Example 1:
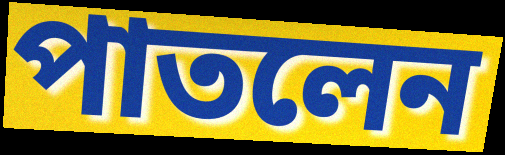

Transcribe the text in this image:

পাতলেন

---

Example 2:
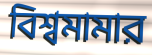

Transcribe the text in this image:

বিশ্বমামার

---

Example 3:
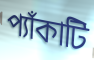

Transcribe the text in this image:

প্যাঁকাটি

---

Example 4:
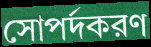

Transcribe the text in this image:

সোপর্দকরণ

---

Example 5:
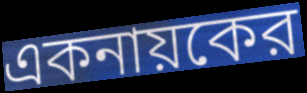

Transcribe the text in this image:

একনায়কের